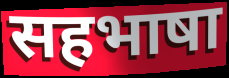
सहभाषा